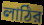
লাঠির